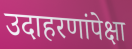
उदाहरणांपेक्षा